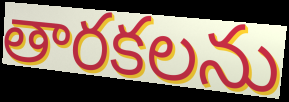
తారకలను